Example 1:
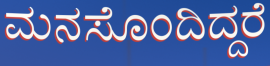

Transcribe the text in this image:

ಮನಸೊಂದಿದ್ದರೆ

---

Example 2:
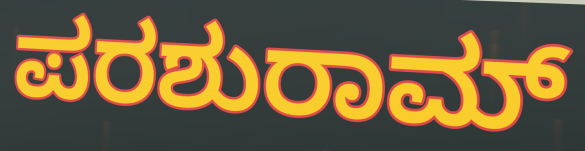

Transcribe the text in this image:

ಪರಶುರಾಮ್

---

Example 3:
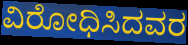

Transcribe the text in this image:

ವಿರೋಧಿಸಿದವರ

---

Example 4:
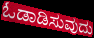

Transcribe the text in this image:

ಓಡಾಡಿಸುವುದು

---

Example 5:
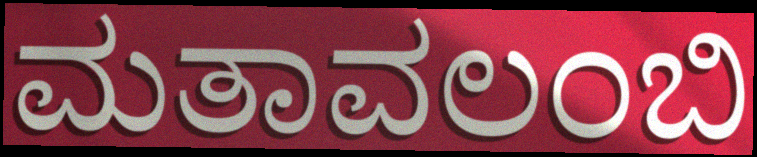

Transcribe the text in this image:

ಮತಾವಲಂಬಿ